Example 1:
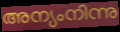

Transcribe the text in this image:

അന്യംനിന്നു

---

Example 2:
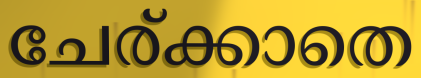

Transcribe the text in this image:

ചേര്ക്കാതെ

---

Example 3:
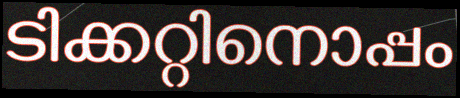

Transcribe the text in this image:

ടിക്കറ്റിനൊപ്പം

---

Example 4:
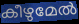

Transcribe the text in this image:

കീഴുമേൽ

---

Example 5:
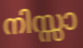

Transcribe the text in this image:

നിസ്സാ